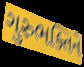
ગુરુભક્તિને